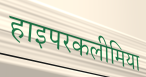
हाइपरकलीमिया